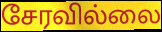
சேரவில்லை